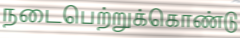
நடைபெற்றுக்கொண்டு